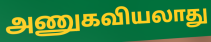
அணுகவியலாது